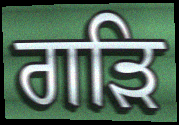
ਗੜਿ